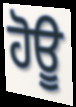
ਹੋਊ